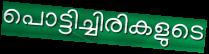
പൊട്ടിച്ചിരികളുടെ